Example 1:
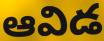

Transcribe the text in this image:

ఆవిడ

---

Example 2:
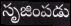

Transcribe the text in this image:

సృజింపడు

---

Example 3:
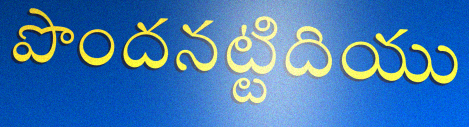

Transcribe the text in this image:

పొందనట్టిదియు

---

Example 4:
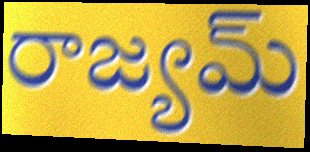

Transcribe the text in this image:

రాజ్యమ్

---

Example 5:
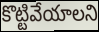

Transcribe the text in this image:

కొట్టివేయాలని